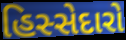
હિસ્સેદારો